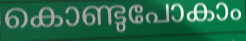
കൊണ്ടുപോകാം